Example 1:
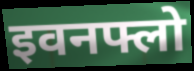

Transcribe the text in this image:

इवनफ्लो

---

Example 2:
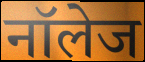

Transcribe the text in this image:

नॉलेज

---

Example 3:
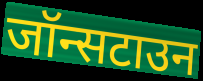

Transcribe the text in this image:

जॉन्सटाउन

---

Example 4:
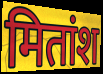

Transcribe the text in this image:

मितांश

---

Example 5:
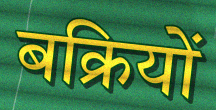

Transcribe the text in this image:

बक्रियों